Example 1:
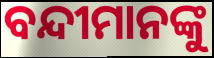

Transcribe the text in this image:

ବନ୍ଦୀମାନଙ୍କୁ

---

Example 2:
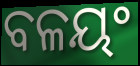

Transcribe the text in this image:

ବଳୟଂ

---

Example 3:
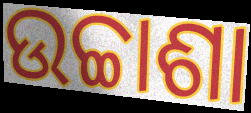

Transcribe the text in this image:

ଉଚ୍ଚାଶା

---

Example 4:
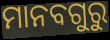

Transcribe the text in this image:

ମାନବଗୁରୁ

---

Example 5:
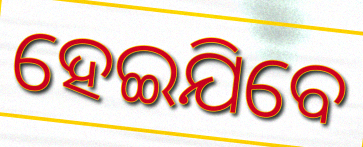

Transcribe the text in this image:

ହେଇଯିବେ